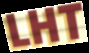
LHT